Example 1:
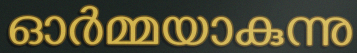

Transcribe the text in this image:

ഓർമ്മയാകുന്നു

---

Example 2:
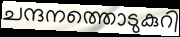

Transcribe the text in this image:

ചന്ദനത്തൊടുകുറി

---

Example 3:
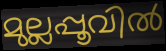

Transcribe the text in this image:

മുല്ലപ്പൂവിൽ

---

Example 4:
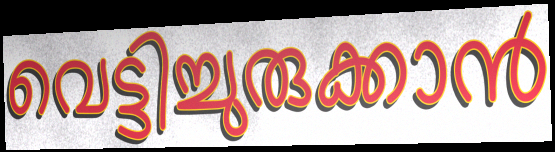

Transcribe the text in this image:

വെട്ടിച്ചുരുക്കാൻ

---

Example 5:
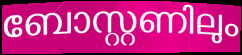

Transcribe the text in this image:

ബോസ്റ്റണിലും